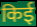
किई